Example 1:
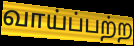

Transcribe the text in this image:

வாய்ப்பற்ற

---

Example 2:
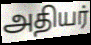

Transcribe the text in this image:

அதியர்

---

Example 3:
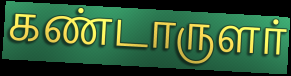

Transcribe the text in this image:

கண்டாருளர்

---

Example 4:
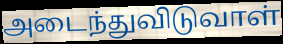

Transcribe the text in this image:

அடைந்துவிடுவாள்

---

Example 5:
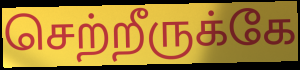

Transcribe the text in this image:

செற்றீருக்கே